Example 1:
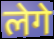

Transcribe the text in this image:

लेगे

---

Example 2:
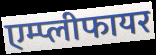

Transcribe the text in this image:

एम्प्लीफायर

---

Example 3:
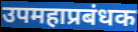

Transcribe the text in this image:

उपमहाप्रबंधक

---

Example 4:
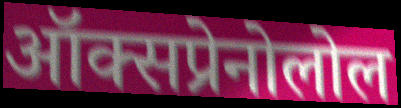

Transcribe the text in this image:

ऑक्सप्रेनोलोल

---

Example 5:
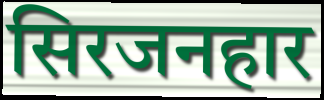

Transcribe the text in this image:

सिरजनहार